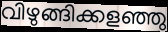
വിഴുങ്ങിക്കളഞ്ഞു